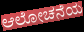
ಆಲೋಚನೆಯ